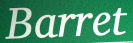
Barret